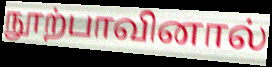
நூற்பாவினால்